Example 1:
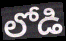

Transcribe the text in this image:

లోడి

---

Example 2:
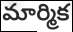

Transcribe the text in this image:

మార్మిక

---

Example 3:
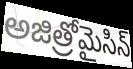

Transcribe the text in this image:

అజిత్రోమైసిన్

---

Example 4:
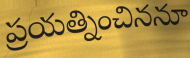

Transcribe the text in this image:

ప్రయత్నించిననూ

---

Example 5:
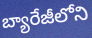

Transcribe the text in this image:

బ్యారేజీలోని